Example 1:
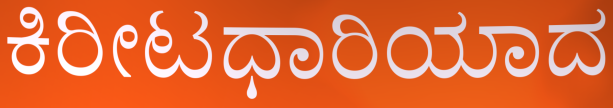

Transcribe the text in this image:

ಕಿರೀಟಧಾರಿಯಾದ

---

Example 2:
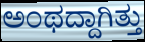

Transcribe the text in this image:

ಅಂಥದ್ದಾಗಿತ್ತು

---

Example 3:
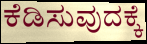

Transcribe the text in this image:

ಕೆಡಿಸುವುದಕ್ಕೆ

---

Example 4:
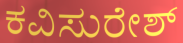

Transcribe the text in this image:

ಕವಿಸುರೇಶ್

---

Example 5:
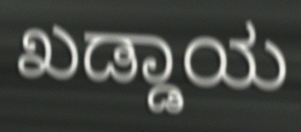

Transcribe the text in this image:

ಖಡ್ಡಾಯ